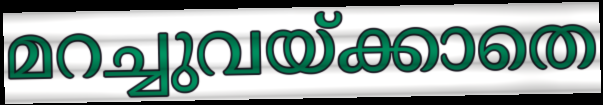
മറച്ചുവയ്ക്കാതെ